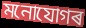
মনোযোগৰ